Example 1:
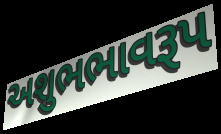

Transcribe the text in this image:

અશુભભાવરૂપ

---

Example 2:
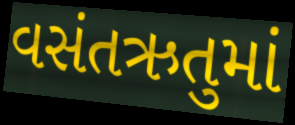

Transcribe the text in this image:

વસંતઋતુમાં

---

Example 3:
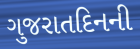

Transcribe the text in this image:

ગુજરાતદિનની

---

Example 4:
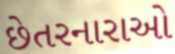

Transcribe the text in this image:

છેતરનારાઓ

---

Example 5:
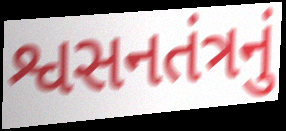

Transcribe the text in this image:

શ્વસનતંત્રનું